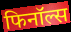
फिनॉल्स